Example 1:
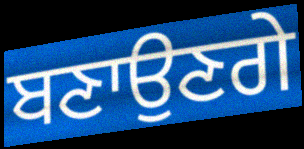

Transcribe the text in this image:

ਬਣਾਉਣਗੇ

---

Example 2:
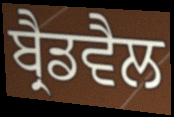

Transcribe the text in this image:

ਬ੍ਰੈਡਵੈਲ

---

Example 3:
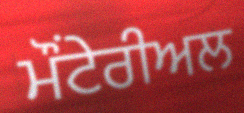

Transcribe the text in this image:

ਮੌਂਟੇਰੀਅਲ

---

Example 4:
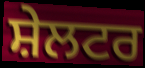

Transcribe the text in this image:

ਸ਼ੇਲਟਰ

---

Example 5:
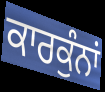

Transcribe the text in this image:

ਕਾਰਕੁੰਨਾਂ